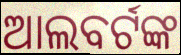
ଆଲବର୍ଟଙ୍କ